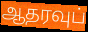
ஆதரவுப்